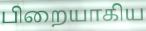
பிறையாகிய